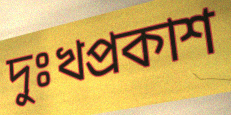
দুঃখপ্রকাশ